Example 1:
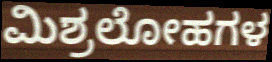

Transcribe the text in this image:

ಮಿಶ್ರಲೋಹಗಳ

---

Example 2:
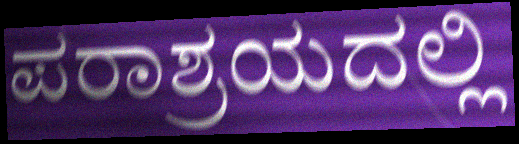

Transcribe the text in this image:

ಪರಾಶ್ರಯದಲ್ಲಿ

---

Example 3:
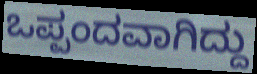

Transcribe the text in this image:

ಒಪ್ಪಂದವಾಗಿದ್ದು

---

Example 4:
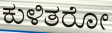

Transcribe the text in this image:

ಕುಳಿತರೋ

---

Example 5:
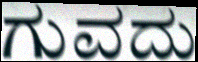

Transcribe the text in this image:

ಗುವದು